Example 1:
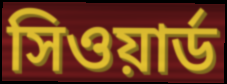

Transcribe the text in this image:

সিওয়ার্ড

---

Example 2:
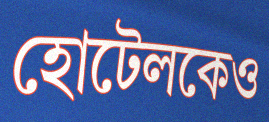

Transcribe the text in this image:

হোটেলকেও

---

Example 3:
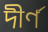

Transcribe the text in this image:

দীর্ণ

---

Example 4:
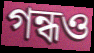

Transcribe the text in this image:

গন্ধও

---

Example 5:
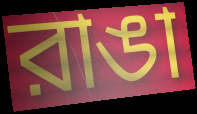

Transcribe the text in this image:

রাঙা